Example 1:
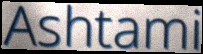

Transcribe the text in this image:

Ashtami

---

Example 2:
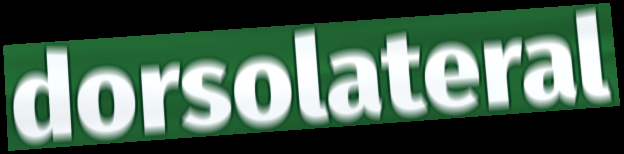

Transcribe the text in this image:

dorsolateral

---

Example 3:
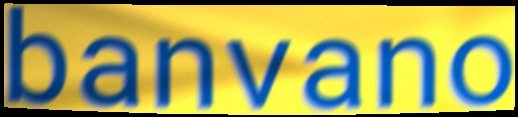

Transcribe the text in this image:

banvano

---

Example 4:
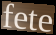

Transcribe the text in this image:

fete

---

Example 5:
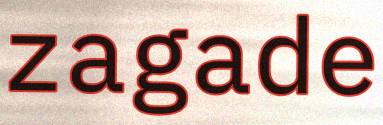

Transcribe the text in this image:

zagade